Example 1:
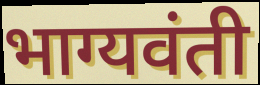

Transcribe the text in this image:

भाग्यवंती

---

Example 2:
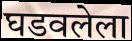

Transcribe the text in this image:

घडवलेला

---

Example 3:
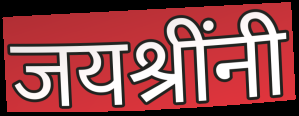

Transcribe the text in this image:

जयश्रींनी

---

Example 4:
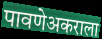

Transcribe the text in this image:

पावणेअकराला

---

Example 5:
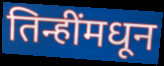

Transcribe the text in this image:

तिन्हींमधून